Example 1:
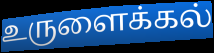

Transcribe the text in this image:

உருளைக்கல்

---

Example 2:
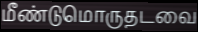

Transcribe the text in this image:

மீண்டுமொருதடவை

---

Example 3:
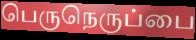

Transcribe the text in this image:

பெருநெருப்பை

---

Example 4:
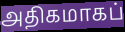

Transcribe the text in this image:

அதிகமாகப்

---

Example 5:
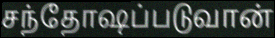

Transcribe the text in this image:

சந்தோஷப்படுவான்